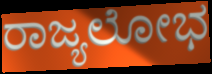
ರಾಜ್ಯಲೋಭ